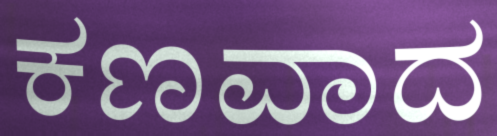
ಕಣವಾದ